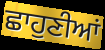
ਛਾਹੁਣੀਆਂ